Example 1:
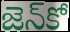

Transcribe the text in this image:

జెన్‌కో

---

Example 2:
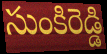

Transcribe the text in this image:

సుంకిరెడ్డి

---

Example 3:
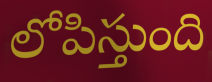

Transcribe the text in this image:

లోపిస్తుంది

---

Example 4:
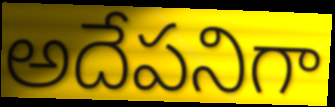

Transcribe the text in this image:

అదేపనిగా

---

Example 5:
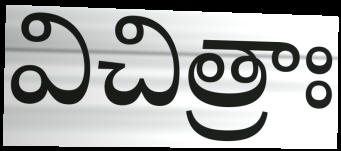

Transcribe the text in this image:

విచిత్రాః